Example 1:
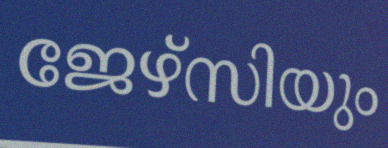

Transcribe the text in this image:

ജേഴ്സിയും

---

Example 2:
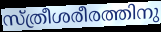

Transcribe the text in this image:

സ്ത്രീശരീരത്തിനു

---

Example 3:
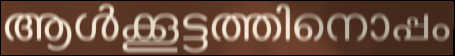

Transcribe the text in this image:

ആൾക്കൂട്ടത്തിനൊപ്പം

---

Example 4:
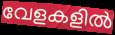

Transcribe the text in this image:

വേളകളിൽ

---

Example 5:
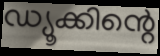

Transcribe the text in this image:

ഡ്യൂക്കിന്റെ